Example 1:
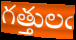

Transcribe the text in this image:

గత్తులఁ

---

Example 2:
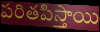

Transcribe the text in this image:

పరితపిస్తాయి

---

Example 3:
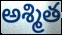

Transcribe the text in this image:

అశ్మిత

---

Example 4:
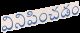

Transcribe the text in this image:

వినిపించడం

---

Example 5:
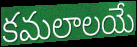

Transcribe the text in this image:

కమలాలయే